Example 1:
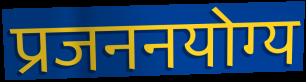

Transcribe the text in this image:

प्रजननयोग्य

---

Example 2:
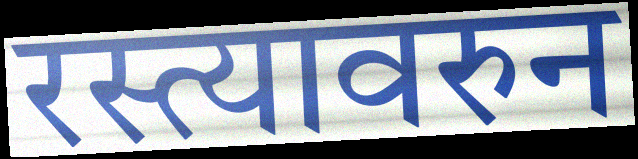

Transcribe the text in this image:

रस्त्यावरुन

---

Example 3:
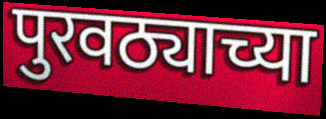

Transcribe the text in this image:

पुरवठ्याच्या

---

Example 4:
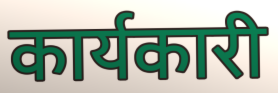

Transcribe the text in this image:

कार्यकारी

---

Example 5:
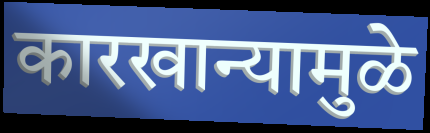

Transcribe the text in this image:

कारखान्यामुळे